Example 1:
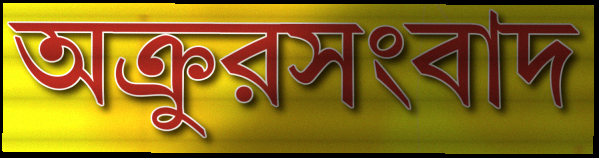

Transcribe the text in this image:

অক্রুরসংবাদ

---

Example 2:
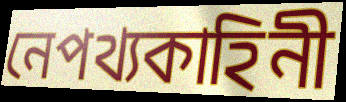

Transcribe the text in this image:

নেপথ্যকাহিনী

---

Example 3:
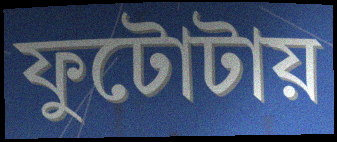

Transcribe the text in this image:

ফুটোটায়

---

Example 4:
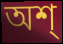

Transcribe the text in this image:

অশ্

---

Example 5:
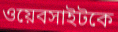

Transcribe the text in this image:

ওয়েবসাইটকে